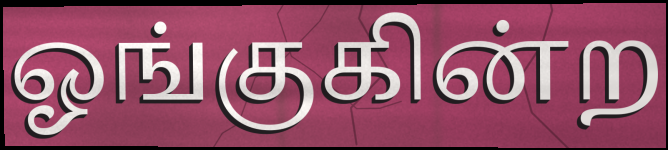
ஓங்குகின்ற